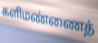
களிமண்ணைத்